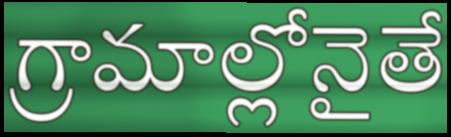
గ్రామాల్లోనైతే